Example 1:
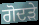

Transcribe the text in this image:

ਗੋਦੜੇ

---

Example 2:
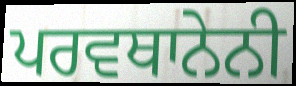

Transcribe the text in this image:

ਪਰਵਥਾਨੇਨੀ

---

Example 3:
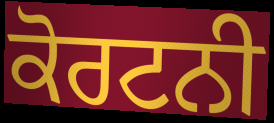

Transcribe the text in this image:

ਕੋਰਟਨੀ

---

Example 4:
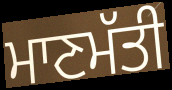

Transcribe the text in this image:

ਮਾਣਮੱਤੀ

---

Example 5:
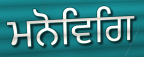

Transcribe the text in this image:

ਮਨੋਵਿਗਿ